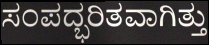
ಸಂಪದ್ಭರಿತವಾಗಿತ್ತು